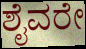
ಶೈವರೇ